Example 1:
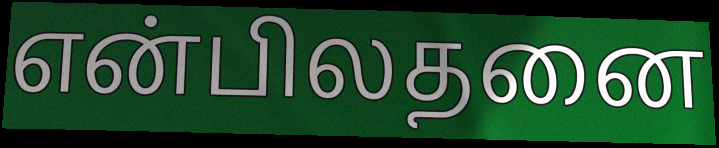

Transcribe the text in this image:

என்பிலதனை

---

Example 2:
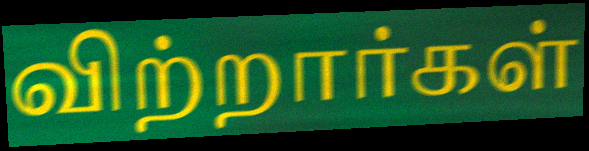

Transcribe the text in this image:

விற்றார்கள்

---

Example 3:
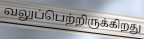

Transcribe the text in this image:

வலுப்பெற்றிருக்கிறது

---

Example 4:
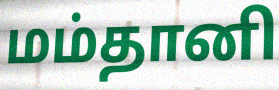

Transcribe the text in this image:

மம்தானி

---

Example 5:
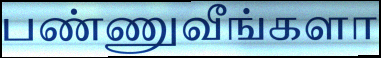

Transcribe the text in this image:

பண்ணுவீங்களா